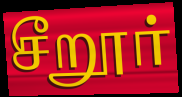
சீறூர்